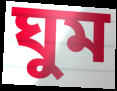
ঘুম